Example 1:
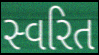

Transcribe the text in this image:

સ્વરિત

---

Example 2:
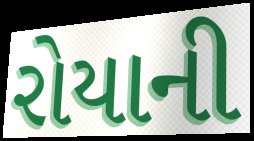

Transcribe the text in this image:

રોયાની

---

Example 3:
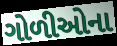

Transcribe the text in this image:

ગોળીઓના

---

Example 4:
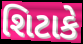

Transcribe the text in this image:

શિટાકે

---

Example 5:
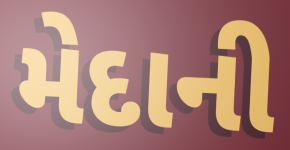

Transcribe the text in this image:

મેદાની